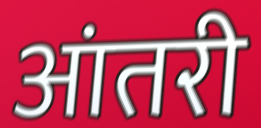
आंतरी